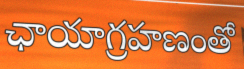
ఛాయాగ్రహణంతో